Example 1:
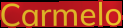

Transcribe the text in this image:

Carmelo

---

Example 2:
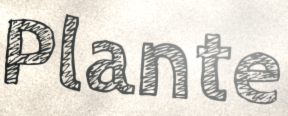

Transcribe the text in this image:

Plante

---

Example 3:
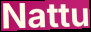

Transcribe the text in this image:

Nattu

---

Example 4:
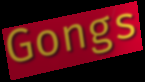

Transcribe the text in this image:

Gongs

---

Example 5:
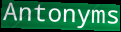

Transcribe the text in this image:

Antonyms